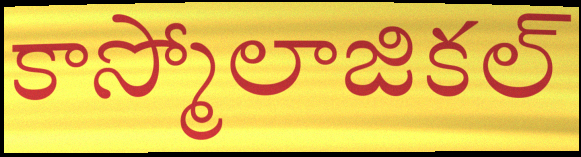
కాస్మోలాజికల్